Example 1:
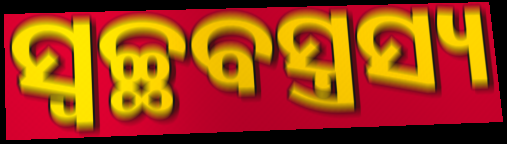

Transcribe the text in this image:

ସ୍ଵଚ୍ଛବସ୍ତ୍ରସ୍ୟ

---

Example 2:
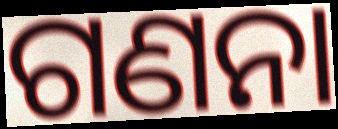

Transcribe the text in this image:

ଗଣନା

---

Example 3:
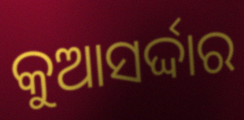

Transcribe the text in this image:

କୁଆସର୍ଦ୍ଦାର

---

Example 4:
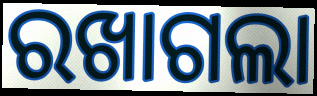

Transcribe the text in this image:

ରଖାଗଲା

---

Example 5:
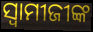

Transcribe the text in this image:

ସ୍ୱାମୀଜୀଙ୍କ